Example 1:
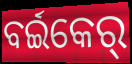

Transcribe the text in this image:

ବର୍ଇକେର୍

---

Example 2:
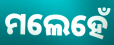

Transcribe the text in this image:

ମଲେହେଁ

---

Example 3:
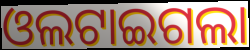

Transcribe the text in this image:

ଓଲଟାଇଗଲା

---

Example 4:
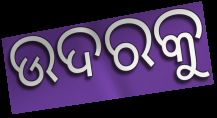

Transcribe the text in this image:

ଉଦରକୁ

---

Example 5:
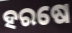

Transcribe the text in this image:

ହରଷେ